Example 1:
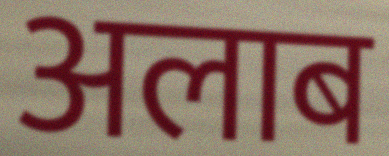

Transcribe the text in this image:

अलाब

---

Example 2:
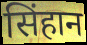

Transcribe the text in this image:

सिंहान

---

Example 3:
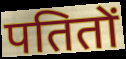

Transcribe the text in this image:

पतितों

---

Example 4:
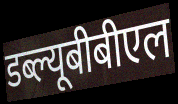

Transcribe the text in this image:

डब्ल्यूबीबीएल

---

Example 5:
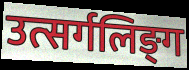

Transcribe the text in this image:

उत्सर्गलिङ्ग